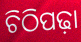
ଚିଠିପଢ଼ା